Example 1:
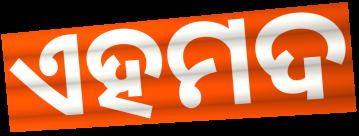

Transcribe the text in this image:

ଏହମଦ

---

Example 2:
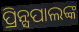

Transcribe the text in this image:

ପ୍ରିନ୍ସପାଲଙ୍କ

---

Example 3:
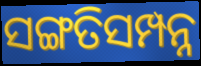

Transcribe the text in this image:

ସଙ୍ଗତିସମ୍ପନ୍ନ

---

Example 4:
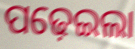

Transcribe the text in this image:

ପଢ଼େଇଲା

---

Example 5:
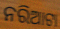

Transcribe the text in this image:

ନରିଆଟା